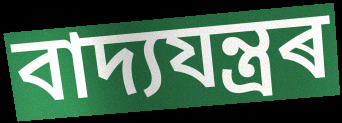
বাদ্যযন্ত্ৰৰ